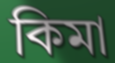
কিমা